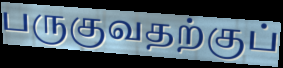
பருகுவதற்குப்